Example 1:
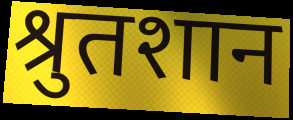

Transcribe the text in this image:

श्रुतशान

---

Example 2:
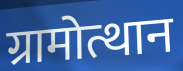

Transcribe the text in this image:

ग्रामोत्थान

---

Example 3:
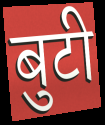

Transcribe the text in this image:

बुटी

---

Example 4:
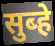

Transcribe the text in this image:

सुब्हे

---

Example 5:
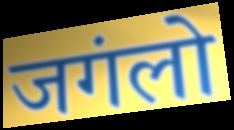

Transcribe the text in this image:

जगंलो